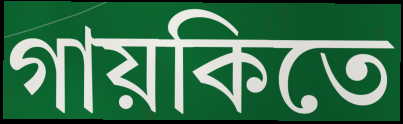
গায়কিতে